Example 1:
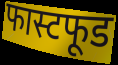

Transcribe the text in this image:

फास्टफूड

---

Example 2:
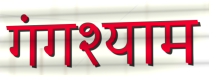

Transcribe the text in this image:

गंगश्याम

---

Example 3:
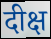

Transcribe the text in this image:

दीक्ष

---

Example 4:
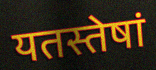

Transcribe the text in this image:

यतस्तेषां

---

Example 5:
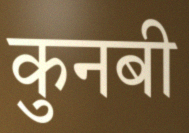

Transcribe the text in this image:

कुनबी